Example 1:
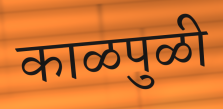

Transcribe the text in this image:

काळपुळी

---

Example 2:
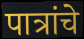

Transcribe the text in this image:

पात्रांचे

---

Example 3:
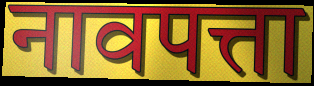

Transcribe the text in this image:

नावपत्ता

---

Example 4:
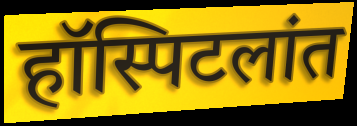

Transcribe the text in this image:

हॉस्पिटलांत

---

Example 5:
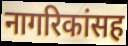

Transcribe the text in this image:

नागरिकांसह